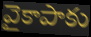
వైకాపాకు